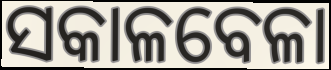
ସକାଳବେଳା